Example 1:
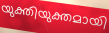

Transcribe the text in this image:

യുക്തിയുക്തമായി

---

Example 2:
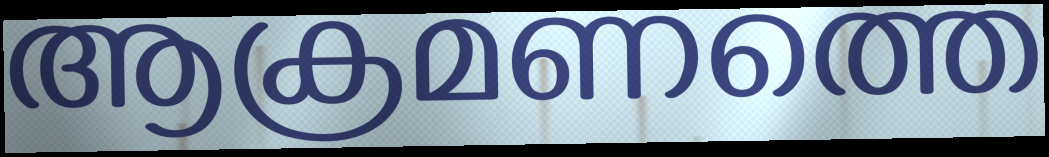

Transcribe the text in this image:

ആക്രമണത്തെ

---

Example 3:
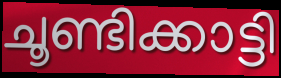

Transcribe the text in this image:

ചൂണ്ടിക്കാട്ടി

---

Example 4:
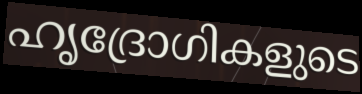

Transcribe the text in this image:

ഹൃദ്രോഗികളുടെ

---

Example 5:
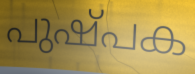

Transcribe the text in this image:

പുഷ്പക